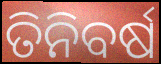
ତିନିବର୍ଷ